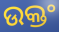
ଉକ୍ତଂ